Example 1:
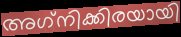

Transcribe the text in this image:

അഗ്‌നിക്കിരയായി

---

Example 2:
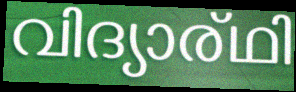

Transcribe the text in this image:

വിദ്യാര്ഥി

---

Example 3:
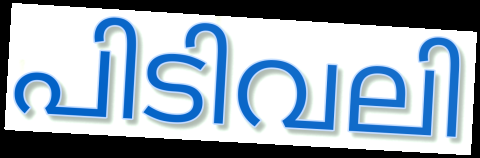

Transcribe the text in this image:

പിടിവലി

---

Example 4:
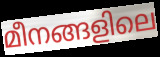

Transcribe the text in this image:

മീനങ്ങളിലെ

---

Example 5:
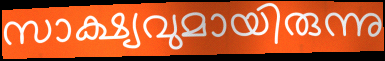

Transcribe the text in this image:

സാക്ഷ്യവുമായിരുന്നു